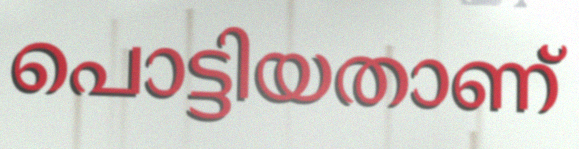
പൊട്ടിയതാണ്